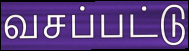
வசப்பட்டு